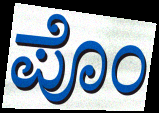
ಪೊಂ